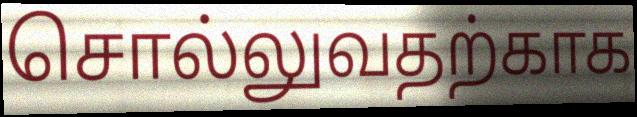
சொல்லுவதற்காக